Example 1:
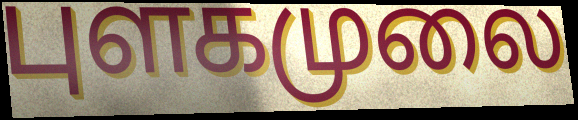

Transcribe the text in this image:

புளகமுலை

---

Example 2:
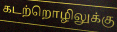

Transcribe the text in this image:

கடற்றொழிலுக்கு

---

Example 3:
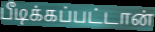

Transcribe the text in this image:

பீடிக்கப்பட்டான்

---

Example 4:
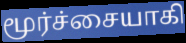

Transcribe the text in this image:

மூர்ச்சையாகி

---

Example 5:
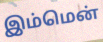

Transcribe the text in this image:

இம்மென்